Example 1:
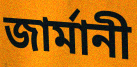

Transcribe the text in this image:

জাৰ্মানী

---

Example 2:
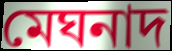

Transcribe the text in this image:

মেঘনাদ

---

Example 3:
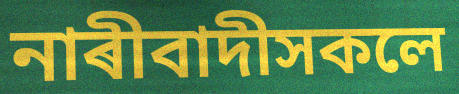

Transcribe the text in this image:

নাৰীবাদীসকলে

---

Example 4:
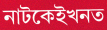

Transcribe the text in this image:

নাটকেইখনত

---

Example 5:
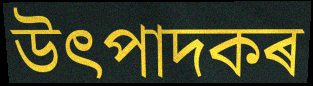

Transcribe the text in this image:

উৎপাদকৰ